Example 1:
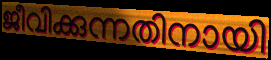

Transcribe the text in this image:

ജീവിക്കുന്നതിനായി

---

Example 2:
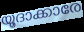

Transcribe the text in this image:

യൂദാക്കാരേ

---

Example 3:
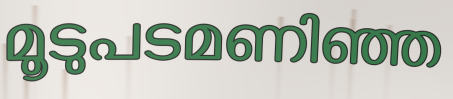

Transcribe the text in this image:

മൂടുപടമണിഞ്ഞ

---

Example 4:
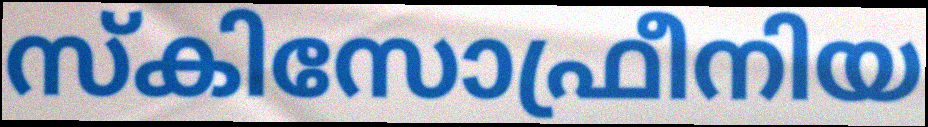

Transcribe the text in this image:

സ്കിസോഫ്രീനിയ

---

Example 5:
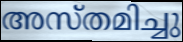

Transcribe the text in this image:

അസ്തമിച്ചു